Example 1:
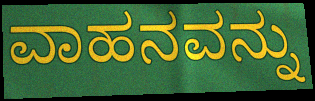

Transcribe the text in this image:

ವಾಹನವನ್ನು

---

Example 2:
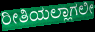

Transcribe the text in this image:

ರೀತಿಯಲ್ಲಾಗಲೀ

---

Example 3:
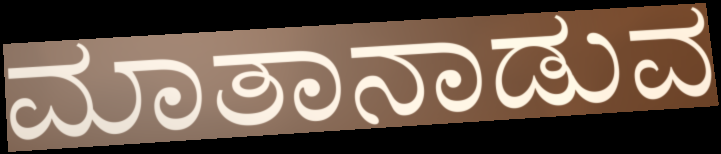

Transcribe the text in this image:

ಮಾತಾನಾಡುವ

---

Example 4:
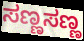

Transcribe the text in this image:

ಸಣ್ಣಸಣ್ಣ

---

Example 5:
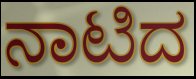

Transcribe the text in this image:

ನಾಟಿದ